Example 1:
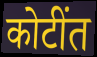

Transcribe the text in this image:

कोटींत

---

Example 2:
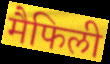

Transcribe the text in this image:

मैफिली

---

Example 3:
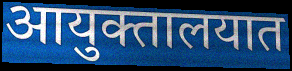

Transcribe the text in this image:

आयुक्तालयात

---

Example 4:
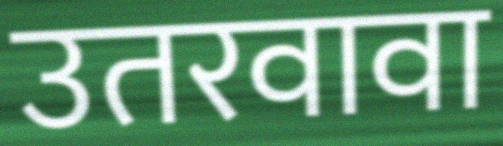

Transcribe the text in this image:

उतरवावा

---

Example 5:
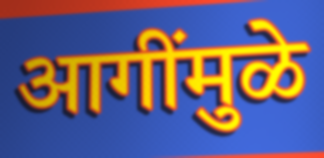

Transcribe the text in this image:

आगींमुळे